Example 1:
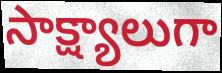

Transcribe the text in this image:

సాక్ష్యాలుగా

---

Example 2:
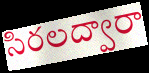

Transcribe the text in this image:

సిరలద్వారా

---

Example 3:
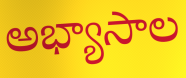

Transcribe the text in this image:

అభ్యాసాల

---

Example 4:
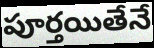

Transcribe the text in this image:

పూర్తయితేనే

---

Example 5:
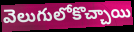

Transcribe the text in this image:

వెలుగులోకొచ్చాయి